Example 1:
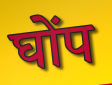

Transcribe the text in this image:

घोंप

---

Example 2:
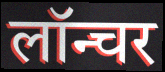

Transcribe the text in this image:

लॉन्चर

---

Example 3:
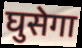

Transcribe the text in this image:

घुसेगा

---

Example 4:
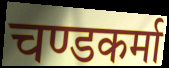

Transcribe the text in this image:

चण्डकर्मा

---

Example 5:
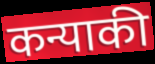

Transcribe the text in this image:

कन्याकी